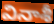
వినాశీ